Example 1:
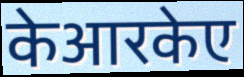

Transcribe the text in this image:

केआरकेए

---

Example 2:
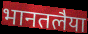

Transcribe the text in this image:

भानतलैया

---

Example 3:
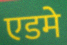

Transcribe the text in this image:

एडमे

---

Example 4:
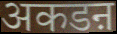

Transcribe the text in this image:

अकडऩ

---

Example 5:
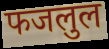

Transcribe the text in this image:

फजलुल